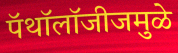
पॅथॉलॉजीजमुळे